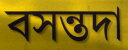
বসন্তদা